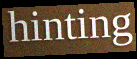
hinting